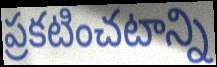
ప్రకటించటాన్ని